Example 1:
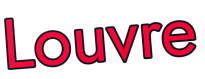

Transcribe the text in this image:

Louvre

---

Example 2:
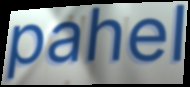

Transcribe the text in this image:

pahel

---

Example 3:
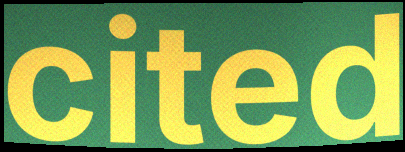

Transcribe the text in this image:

cited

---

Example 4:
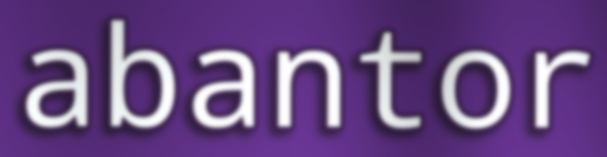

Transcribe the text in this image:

abantor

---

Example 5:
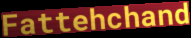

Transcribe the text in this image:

Fattehchand